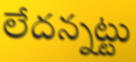
లేదన్నట్టు